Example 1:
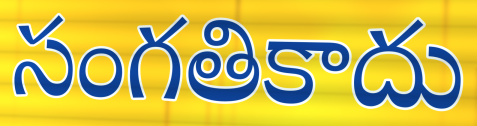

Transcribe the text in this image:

సంగతికాదు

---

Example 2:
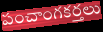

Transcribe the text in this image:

పంచాంగకర్తలు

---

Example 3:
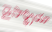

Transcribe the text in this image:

డైసార్థ్రియా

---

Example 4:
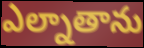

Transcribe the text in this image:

ఎల్నాతాను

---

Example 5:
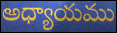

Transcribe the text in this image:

అధ్యాయము